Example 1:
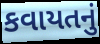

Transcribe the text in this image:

કવાયતનું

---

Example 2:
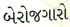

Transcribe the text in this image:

બેરોજગારો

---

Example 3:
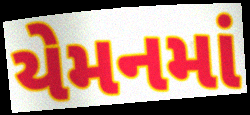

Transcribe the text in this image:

યેમનમાં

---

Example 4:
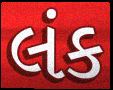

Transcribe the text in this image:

લંક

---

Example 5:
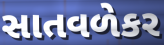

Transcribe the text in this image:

સાતવળેકર